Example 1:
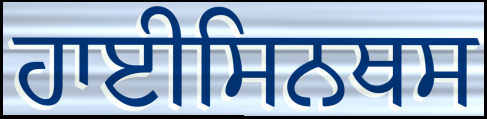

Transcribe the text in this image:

ਹਾਈਸਿਨਥਸ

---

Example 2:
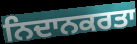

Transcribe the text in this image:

ਨਿਦਾਨਕਰਤਾ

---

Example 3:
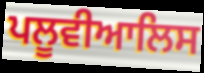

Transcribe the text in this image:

ਪਲੂਵੀਆਲਿਸ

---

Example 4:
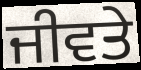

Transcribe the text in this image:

ਜੀਵਤੇ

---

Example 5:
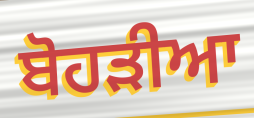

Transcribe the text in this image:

ਬੋਹੜੀਆ